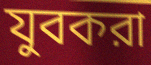
যুবকরা